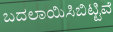
ಬದಲಾಯಿಸಿಬಿಟ್ಟಿವೆ